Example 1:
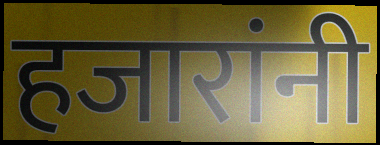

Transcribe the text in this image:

हजारांनी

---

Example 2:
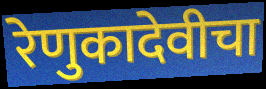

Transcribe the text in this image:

रेणुकादेवीचा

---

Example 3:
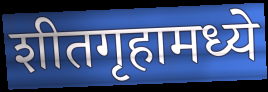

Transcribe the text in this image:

शीतगृहामध्ये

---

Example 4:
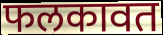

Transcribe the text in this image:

फलकावत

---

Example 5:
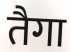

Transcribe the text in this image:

तैगा